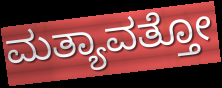
ಮತ್ಯಾವತ್ತೋ